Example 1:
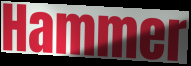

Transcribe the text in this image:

Hammer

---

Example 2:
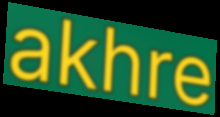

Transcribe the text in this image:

akhre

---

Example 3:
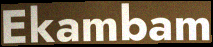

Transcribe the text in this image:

Ekambam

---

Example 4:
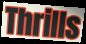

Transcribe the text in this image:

Thrills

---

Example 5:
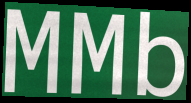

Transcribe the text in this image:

MMb